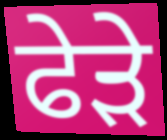
ਫੇੜੇ